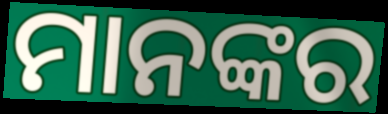
ମାନଙ୍କର